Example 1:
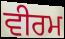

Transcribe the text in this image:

ਵੀਰਮ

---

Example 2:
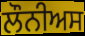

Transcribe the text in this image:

ਲੌਨੀਅਸ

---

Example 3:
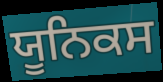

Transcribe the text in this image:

ਯੂਨਿਕਸ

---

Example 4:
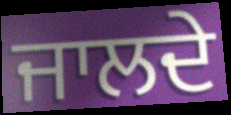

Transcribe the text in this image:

ਜਾਲਦੇ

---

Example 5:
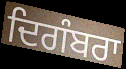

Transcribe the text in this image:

ਦਿਗੰਬਰਾ